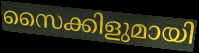
സൈക്കിളുമായി